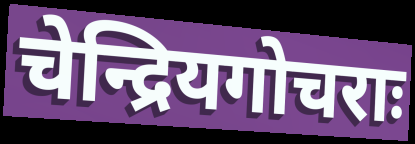
चेन्द्रियगोचराः